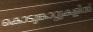
കൊടുങ്കാറ്റുകളിൽ